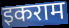
इकराम